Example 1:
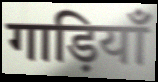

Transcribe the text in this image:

गाड़ियाँ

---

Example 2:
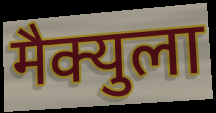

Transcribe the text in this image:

मैक्युला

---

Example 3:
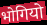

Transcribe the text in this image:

भोगियो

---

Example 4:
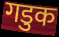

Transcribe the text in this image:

गडुक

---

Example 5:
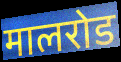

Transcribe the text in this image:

मालरोड